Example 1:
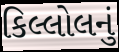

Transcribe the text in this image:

કિલ્લોલનું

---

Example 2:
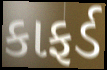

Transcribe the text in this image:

કાફર્ડ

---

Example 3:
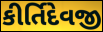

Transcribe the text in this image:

કીર્તિદેવજી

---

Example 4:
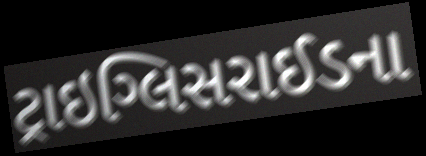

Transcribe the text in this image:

ટ્રાઇગ્લિસરાઈડના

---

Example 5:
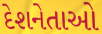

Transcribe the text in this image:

દેશનેતાઓ